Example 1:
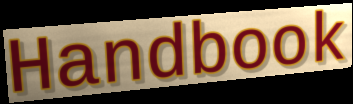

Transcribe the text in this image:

Handbook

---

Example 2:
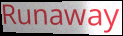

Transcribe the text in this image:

Runaway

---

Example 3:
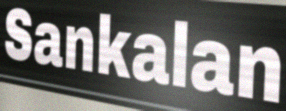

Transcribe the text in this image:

Sankalan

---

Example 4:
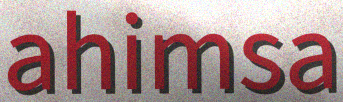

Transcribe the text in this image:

ahimsa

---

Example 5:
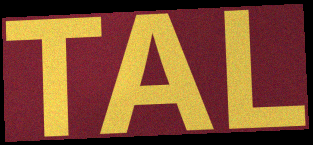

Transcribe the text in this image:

TAL